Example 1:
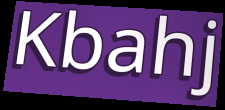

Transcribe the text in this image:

Kbahj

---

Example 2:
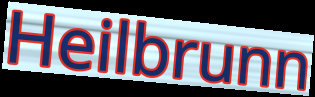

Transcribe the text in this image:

Heilbrunn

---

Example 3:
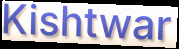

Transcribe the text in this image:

Kishtwar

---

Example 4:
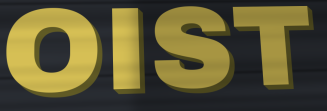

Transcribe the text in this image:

OIST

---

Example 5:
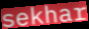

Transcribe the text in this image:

sekhar